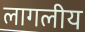
लागलीय